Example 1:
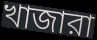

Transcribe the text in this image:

খাজারা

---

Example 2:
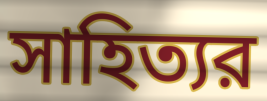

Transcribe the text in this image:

সাহিত্যর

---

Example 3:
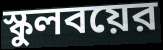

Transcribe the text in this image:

স্কুলবয়ের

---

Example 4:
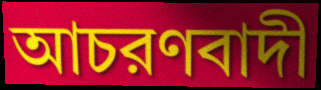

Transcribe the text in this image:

আচরণবাদী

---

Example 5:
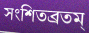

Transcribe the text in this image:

সংশিতব্রতম্